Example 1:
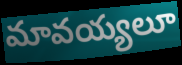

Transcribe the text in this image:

మావయ్యలూ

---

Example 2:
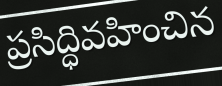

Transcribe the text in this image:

ప్రసిద్ధివహించిన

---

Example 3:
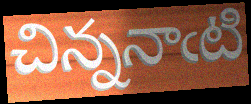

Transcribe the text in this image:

చిన్ననాఁటి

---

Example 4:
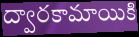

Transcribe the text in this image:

ద్వారకామాయికి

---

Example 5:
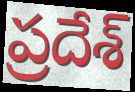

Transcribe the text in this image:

ప్రదేశ్